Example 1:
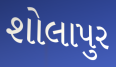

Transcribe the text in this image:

શોલાપુર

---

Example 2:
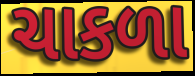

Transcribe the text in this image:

ચાકળા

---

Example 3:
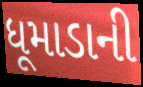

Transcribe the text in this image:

ધૂમાડાની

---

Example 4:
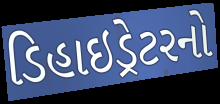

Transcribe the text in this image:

ડિહાઇડ્રેટરનો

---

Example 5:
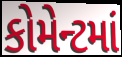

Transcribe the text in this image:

કોમેન્ટમાં